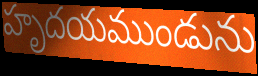
హృదయముండును